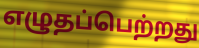
எழுதப்பெற்றது